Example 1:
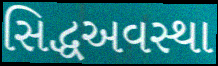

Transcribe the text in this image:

સિદ્ધઅવસ્થા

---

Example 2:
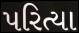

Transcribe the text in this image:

પરિત્યા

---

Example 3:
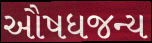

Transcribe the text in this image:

ઔષધજન્ય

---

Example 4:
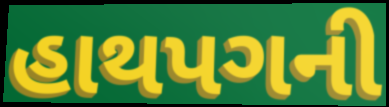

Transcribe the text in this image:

હાથપગની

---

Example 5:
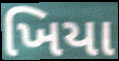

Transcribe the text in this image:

ખિયા